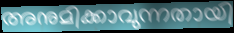
അനുമിക്കാവുന്നതായി